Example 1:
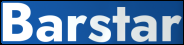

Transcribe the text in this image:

Barstar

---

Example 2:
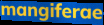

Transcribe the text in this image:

mangiferae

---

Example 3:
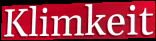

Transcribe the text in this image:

Klimkeit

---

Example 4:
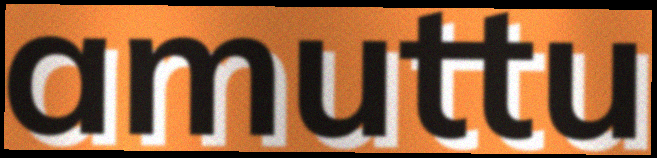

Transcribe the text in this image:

amuttu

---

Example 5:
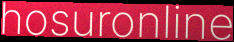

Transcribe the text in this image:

hosuronline